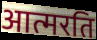
आत्मरति